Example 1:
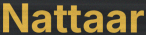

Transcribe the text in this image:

Nattaar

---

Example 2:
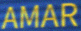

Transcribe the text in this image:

AMAR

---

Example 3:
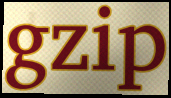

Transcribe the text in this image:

gzip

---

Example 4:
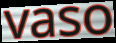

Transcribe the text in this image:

vaso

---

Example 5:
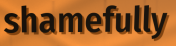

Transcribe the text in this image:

shamefully